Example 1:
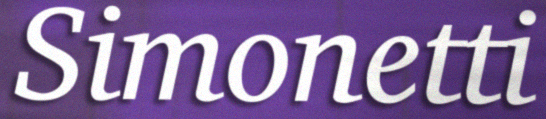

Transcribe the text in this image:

Simonetti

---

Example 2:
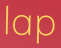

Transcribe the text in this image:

lap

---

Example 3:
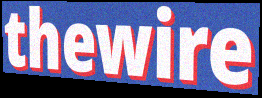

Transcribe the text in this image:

thewire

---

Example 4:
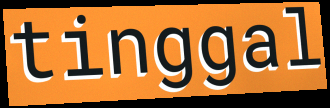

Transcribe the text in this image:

tinggal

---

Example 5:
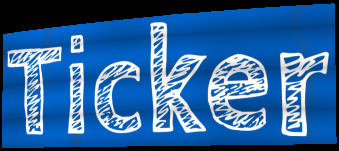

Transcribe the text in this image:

Ticker